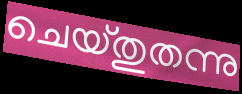
ചെയ്തുതന്നു